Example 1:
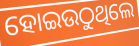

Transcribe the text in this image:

ହୋଇଉଠୁଥିଲେ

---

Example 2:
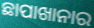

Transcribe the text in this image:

ଛାପାଖାନାର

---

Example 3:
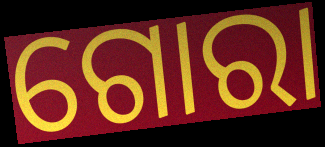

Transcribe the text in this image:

ଗୋରା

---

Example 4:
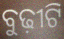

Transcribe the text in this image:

ବୁଢ଼ୀଟି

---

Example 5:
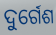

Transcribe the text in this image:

ଦୁର୍ଗେଶ